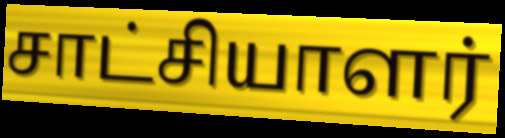
சாட்சியாளர்